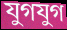
যুগযুগ